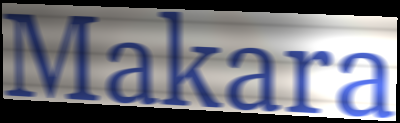
Makara